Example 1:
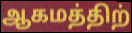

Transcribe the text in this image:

ஆகமத்திற்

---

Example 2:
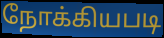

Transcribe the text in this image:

நோக்கியபடி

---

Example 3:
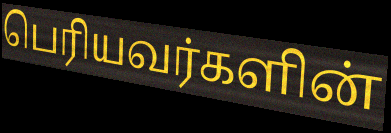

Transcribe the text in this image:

பெரியவர்களின்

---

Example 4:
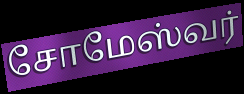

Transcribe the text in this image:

சோமேஸ்வர்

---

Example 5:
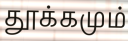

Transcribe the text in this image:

தூக்கமும்